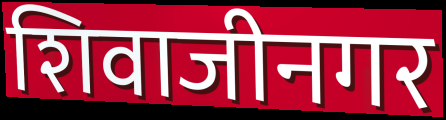
शिवाजीनगर